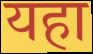
यहा